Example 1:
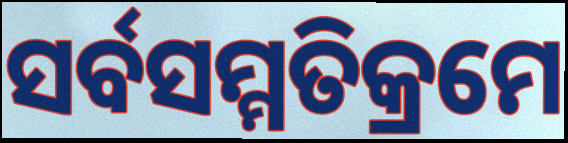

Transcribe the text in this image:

ସର୍ବସମ୍ମତିକ୍ରମେ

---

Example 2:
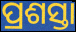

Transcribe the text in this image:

ପ୍ରଶସ୍ତା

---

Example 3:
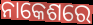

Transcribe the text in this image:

ନାକେଶରେ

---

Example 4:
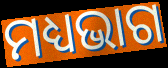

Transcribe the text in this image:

ମଧ୍ୟଭାଗ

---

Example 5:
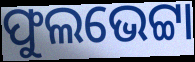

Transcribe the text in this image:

ଫୁଲଭେଟ୍ଟା